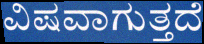
ವಿಷವಾಗುತ್ತದೆ